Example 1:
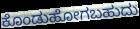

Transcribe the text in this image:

ಕೊಂಡುಹೋಗಬಹುದು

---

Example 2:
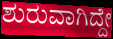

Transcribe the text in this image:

ಶುರುವಾಗಿದ್ದೇ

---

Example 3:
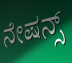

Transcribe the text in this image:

ನೇಷನ್ಸ್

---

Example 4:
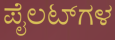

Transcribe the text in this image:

ಪೈಲಟ್‌ಗಳ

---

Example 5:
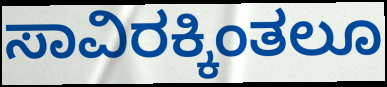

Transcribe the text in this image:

ಸಾವಿರಕ್ಕಿಂತಲೂ